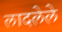
लादलेले